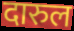
दारुल